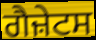
ਗੈਜ਼ੇਟਸ